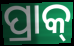
ପ୍ରାକ୍